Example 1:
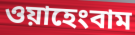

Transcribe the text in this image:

ওয়াহেংবাম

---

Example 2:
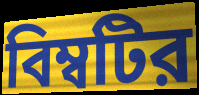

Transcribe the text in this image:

বিম্বটির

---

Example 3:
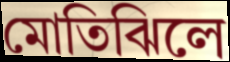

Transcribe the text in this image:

মোতিঝিলে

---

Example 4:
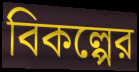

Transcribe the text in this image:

বিকল্পের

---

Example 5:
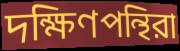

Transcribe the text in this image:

দক্ষিণপন্থিরা